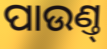
ପାଉଣ୍ତ୍